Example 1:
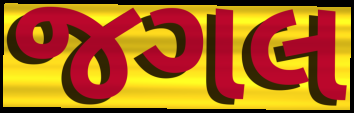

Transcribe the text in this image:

જગલ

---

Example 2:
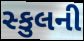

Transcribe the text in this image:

સ્કુલની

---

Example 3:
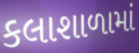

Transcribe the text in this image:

કલાશાળામાં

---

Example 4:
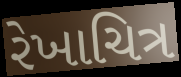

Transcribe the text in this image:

રેખાચિત્ર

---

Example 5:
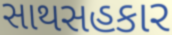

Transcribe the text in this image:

સાથસહકાર